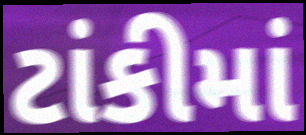
ટાંકીમાં